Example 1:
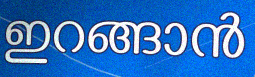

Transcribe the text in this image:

ഇറങ്ങാൻ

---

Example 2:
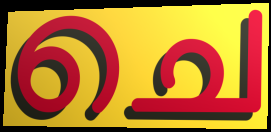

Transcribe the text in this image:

ചെ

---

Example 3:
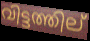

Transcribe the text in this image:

വിട്ടത്തില്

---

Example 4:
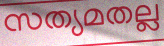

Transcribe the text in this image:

സത്യമതല്ല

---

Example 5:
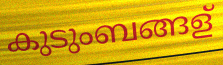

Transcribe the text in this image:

കുടുംബങ്ങള്